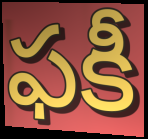
ఫకీ